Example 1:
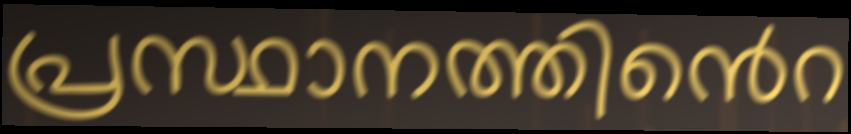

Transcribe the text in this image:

പ്രസ്ഥാനത്തിൻെറ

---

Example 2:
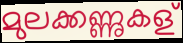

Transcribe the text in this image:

മുലക്കണ്ണുകള്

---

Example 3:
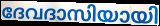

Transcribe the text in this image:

ദേവദാസിയായി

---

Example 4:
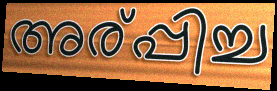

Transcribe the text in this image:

അര്പ്പിച്ച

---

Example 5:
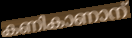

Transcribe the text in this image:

കണികാണാന്